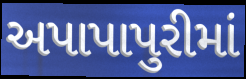
અપાપાપુરીમાં